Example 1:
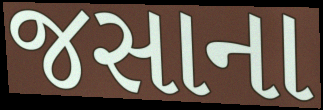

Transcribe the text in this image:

જસાના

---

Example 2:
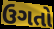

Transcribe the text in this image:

ઉગતો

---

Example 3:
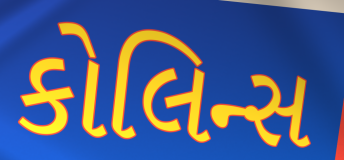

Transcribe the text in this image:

કોલિન્સ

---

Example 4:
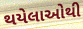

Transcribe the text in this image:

થયેલાઓથી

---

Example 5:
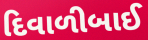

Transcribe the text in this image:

દિવાળીબાઈ